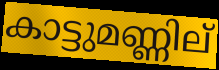
കാട്ടുമണ്ണില്